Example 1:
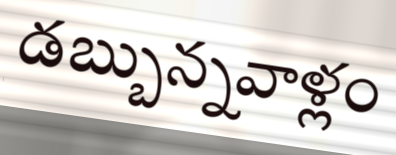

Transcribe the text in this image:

డబ్బున్నవాళ్లం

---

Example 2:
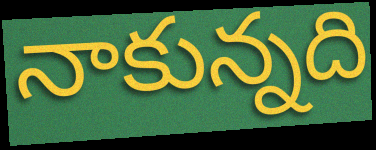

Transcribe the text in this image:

నాకున్నది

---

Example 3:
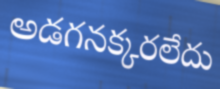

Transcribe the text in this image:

అడగనక్కరలేదు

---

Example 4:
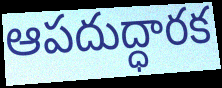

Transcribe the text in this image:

ఆపదుద్ధారక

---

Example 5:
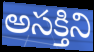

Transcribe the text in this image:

అసక్తిని